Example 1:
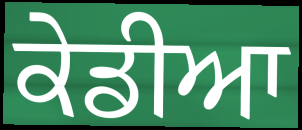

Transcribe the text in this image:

ਕੇਡੀਆ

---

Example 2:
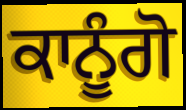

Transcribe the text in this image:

ਕਾਨੂੰਗੋ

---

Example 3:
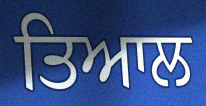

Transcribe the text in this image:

ਤਿਆਲ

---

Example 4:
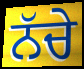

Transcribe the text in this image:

ਨੱਚੇ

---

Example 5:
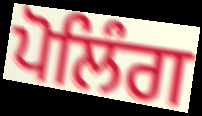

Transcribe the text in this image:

ਪੋਲਿੰਗ